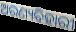
ଅରଣ୍ୟବିହାରୀ